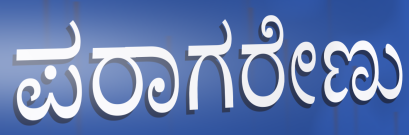
ಪರಾಗರೇಣು